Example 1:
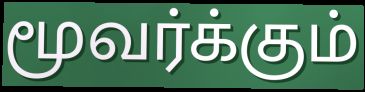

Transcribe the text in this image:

மூவர்க்கும்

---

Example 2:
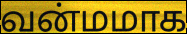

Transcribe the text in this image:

வன்மமாக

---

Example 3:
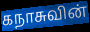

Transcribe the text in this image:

கநாசுவின்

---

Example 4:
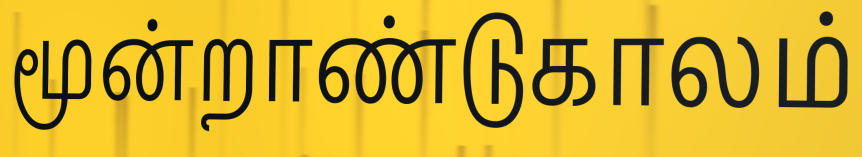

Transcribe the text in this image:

மூன்றாண்டுகாலம்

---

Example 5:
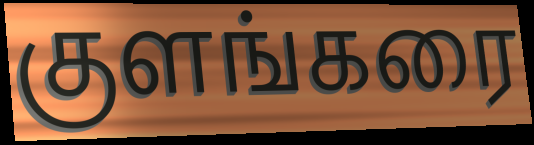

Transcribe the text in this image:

குளங்கரை